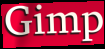
Gimp